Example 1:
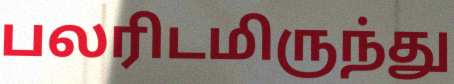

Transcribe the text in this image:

பலரிடமிருந்து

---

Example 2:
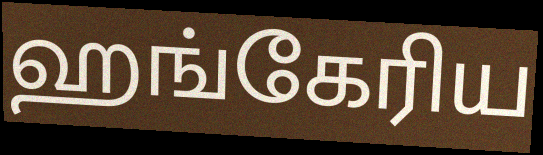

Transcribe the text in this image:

ஹங்கேரிய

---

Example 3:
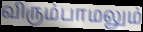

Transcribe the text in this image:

விரும்பாமலும்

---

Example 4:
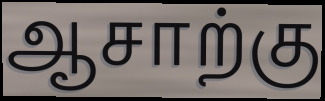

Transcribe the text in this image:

ஆசாற்கு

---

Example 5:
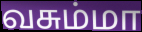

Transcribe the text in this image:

வசும்மா